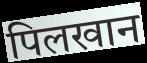
पिलखान